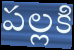
పల్లకి